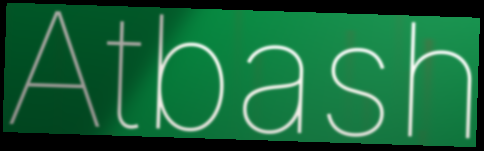
Atbash